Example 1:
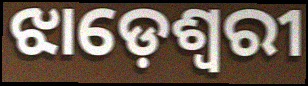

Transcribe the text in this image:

ଝାଡ଼େଶ୍ୱରୀ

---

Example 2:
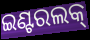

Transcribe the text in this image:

ଇଣ୍ଟରଲକ୍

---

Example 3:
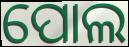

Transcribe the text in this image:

ପୋଲ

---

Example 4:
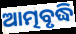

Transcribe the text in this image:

ଆତ୍ମବୃଦ୍ଧି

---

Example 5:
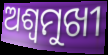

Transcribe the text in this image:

ଅଶ୍ୱମୁଖୀ